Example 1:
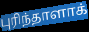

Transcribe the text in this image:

புரிந்தாளாக்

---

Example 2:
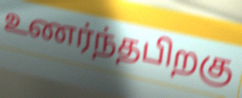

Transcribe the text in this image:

உணர்ந்தபிறகு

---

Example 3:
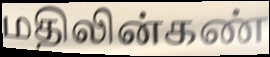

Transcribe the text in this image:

மதிலின்கண்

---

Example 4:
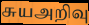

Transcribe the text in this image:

சுயஅறிவு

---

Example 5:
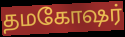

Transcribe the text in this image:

தமகோஷர்